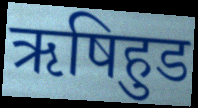
ऋषिहुड